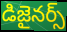
డిజైనర్స్